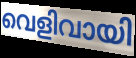
വെളിവായി